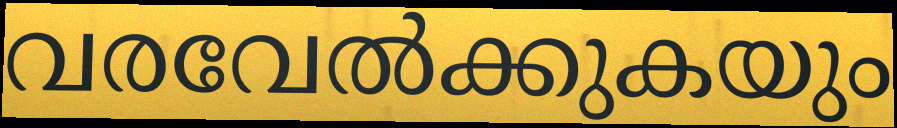
വരവേൽക്കുകയും